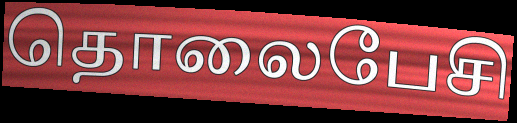
தொலைபேசி